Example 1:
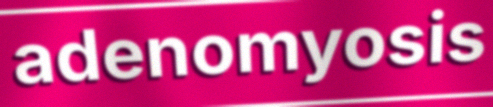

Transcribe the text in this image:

adenomyosis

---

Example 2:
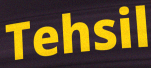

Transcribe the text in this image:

Tehsil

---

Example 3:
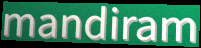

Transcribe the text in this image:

mandiram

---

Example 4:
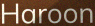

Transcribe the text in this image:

Haroon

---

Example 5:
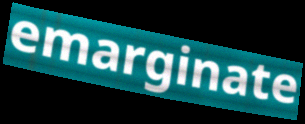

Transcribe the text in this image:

emarginate